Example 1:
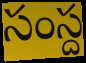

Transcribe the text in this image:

సంస్ద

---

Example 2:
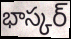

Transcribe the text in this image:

భాస్కర్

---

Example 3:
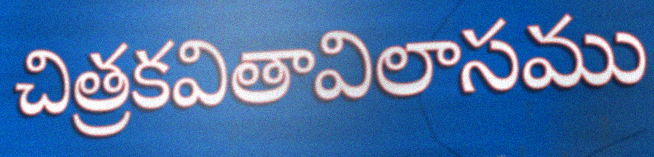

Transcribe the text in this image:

చిత్రకవితావిలాసము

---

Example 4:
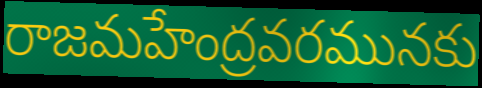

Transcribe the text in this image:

రాజమహేంద్రవరమునకు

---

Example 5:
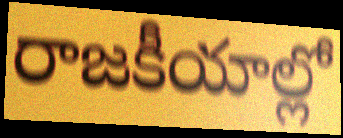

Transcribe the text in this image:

రాజకీయాల్లో